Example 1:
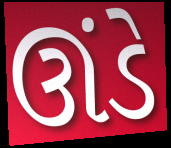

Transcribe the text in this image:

ઊંડે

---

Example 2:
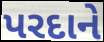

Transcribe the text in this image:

પરદાને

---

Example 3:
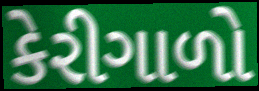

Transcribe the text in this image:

કેરીગાળો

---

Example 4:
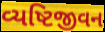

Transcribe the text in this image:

વ્યષ્ટિજીવન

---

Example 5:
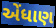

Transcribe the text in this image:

એંધાણ